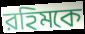
রহিমকে